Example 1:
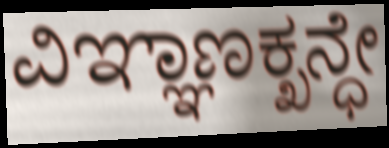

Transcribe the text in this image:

ವಿಞ್ಞಾಣಕ್ಖನ್ಧೇ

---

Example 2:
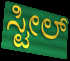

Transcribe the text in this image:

ಸ್ಟೀಲ್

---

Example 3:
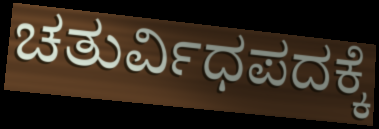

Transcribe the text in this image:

ಚತುರ್ವಿಧಪದಕ್ಕೆ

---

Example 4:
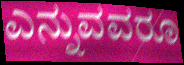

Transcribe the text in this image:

ಎನ್ನುವವರೂ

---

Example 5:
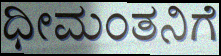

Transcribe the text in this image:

ಧೀಮಂತನಿಗೆ